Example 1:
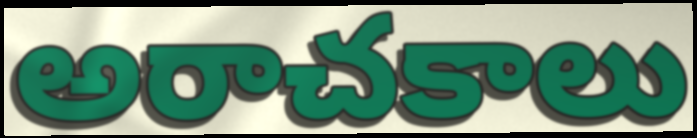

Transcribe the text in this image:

అరాచకాలు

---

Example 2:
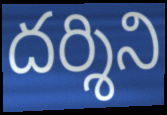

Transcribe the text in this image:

దర్శిని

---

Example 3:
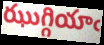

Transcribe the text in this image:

ఝుగ్గియాఁ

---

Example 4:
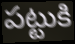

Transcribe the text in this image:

పట్టుకి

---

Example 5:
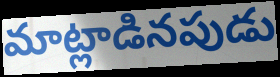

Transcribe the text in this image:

మాట్లాడినపుడు